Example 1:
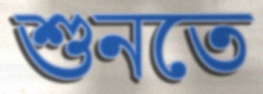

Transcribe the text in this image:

শুনতে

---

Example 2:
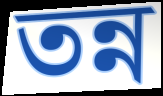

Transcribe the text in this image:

তন্ন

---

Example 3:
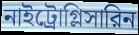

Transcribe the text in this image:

নাইট্রোগ্লিসারিন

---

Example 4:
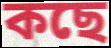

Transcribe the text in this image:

কছে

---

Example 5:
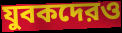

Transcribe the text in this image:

যুবকদেরও